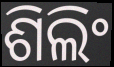
ଶିଲିଂ